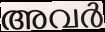
അവർ